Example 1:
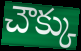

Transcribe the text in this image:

చౌక్కు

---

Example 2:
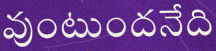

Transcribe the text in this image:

వుంటుందనేది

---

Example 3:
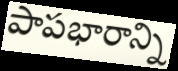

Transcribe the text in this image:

పాపభారాన్ని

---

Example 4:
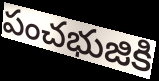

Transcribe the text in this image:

పంచభుజికి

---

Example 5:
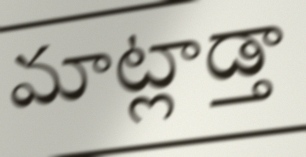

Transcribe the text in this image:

మాట్లాడ్తా